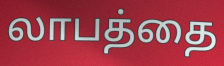
லாபத்தை